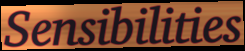
Sensibilities